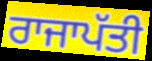
ਰਾਜਾਪੱਤੀ